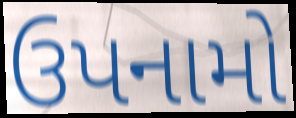
ઉપનામો